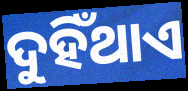
ଦୁହିଁଥାଏ